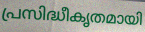
പ്രസിദ്ധീകൃതമായി